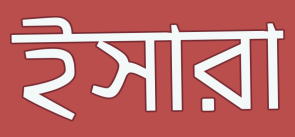
ইসারা